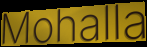
Mohalla